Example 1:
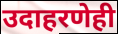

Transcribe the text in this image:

उदाहरणेही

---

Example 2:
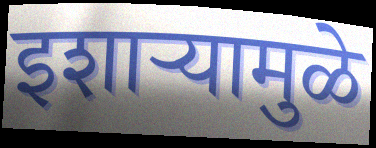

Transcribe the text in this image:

इशाऱ्यामुळे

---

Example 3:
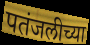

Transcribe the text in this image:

पतंजलीच्या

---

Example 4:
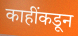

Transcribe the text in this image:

काहींकडून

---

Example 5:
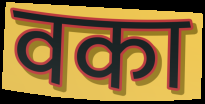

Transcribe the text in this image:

वका